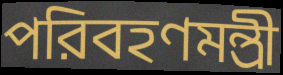
পরিবহণমন্ত্রী